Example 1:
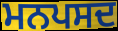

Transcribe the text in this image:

ਮਨਪਸਦ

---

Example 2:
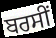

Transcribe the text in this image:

ਬਰਸੀਂ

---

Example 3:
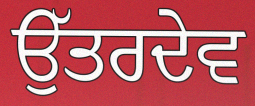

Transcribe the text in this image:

ਉੱਤਰਦੇਵ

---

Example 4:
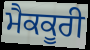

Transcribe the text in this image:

ਮੈਕਕੂਰੀ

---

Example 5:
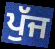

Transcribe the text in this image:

ਪੁੱਜ